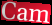
Cam